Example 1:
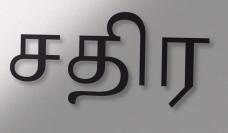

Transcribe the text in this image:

சதிர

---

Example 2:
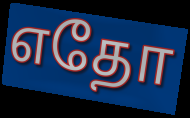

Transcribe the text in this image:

எதோ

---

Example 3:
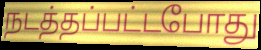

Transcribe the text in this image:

நடத்தப்பட்டபோது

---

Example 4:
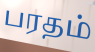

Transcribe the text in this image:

பரதம்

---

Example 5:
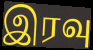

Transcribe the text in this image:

இரவு